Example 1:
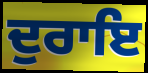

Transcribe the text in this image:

ਦੁਰਾਇ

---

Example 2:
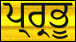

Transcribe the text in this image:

ਪ੍ਰ੍ਰਭੂ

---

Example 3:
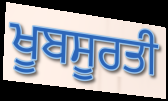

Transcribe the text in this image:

ਖੂਬਸੂਰਤੀ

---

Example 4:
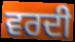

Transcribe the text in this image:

ਵਰਦੀ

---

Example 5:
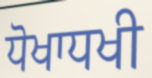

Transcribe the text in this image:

ਧੋਖਾਧਖੀ